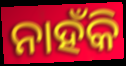
ନାହଁକି